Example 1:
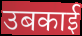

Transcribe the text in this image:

उबकाई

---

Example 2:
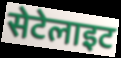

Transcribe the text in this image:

सेटेलाइट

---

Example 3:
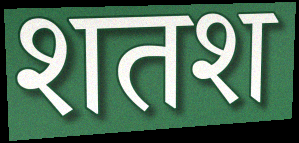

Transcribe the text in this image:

शतश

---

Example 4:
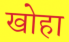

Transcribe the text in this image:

खोहा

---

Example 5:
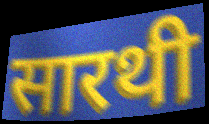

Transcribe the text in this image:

सारथी